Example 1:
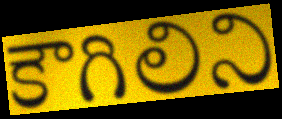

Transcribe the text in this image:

కౌగిలిని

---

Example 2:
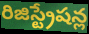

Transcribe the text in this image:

రిజిస్ట్రేషన్ల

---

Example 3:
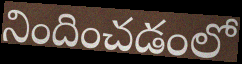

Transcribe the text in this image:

నిందించడంలో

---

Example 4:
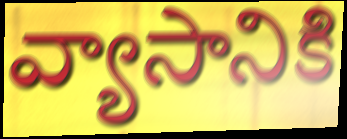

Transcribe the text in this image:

వ్యాసానికి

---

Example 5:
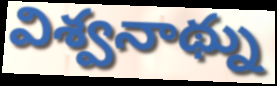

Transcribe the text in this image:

విశ్వనాథ్ను